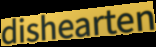
dishearten